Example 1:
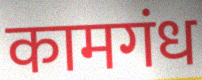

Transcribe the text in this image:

कामगंध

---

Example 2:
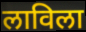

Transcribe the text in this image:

लाविला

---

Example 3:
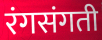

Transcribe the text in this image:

रंगसंगती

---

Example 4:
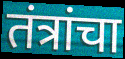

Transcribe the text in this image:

तंत्रांचा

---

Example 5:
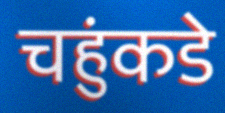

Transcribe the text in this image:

चहुंकडे